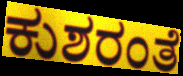
ಕುಶರಂತೆ